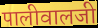
पालीवालजी